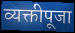
व्यक्तीपूजा